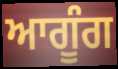
ਆਗੂੰਗ